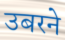
उबरने